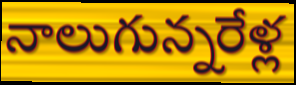
నాలుగున్నరేళ్ల